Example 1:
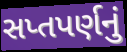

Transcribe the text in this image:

સપ્તપર્ણનું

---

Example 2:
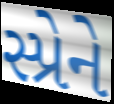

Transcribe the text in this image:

સ્પ્રેને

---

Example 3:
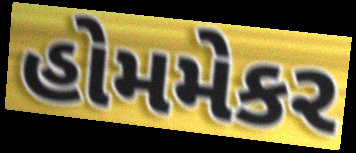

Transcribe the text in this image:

હોમમેકર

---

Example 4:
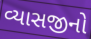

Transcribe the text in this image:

વ્યાસજીનો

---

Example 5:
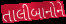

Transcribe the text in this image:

તાલીબાનોને